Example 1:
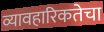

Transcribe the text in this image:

व्यावहारिकतेचा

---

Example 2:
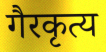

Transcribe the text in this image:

गैरकृत्य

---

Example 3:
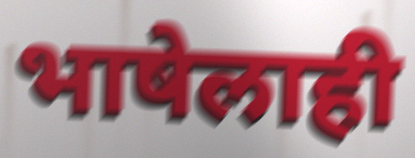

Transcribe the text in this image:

भाषेलाही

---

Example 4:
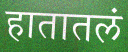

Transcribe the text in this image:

हातातलं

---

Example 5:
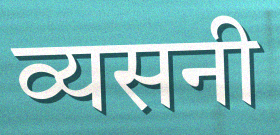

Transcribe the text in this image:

व्यसनी